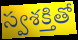
స్వశక్తితో